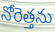
నోరెత్తను